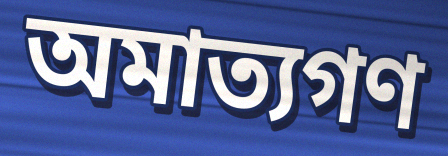
অমাত্যগণ